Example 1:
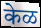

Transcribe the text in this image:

केळ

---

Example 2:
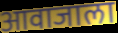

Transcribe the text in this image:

आवाजाला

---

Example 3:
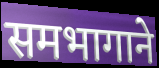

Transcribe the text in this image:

समभागाने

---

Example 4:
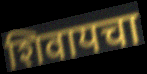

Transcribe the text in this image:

शिवायचा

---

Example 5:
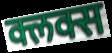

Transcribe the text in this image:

क्लक्स